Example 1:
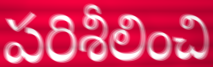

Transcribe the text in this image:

పరిశీలించి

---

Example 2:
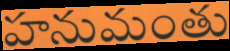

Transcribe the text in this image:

హనుమంతు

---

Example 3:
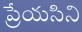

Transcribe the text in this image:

ప్రేయసిని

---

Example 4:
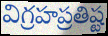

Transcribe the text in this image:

విగ్రహప్రతిష్ట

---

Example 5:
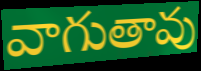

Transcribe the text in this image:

వాగుతావు